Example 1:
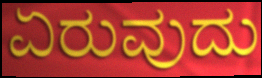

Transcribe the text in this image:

ಏರುವುದು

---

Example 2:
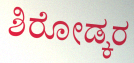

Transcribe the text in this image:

ಶಿರೋಡ್ಕರ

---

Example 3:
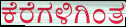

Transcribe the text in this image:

ಕೆರೆಗಳಿಗಿಂತ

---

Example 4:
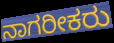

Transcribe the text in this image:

ನಾಗರೀಕರು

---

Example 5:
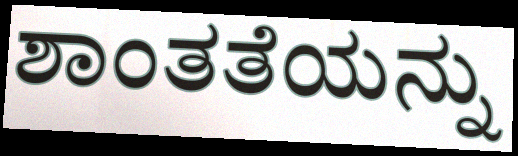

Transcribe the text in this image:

ಶಾಂತತೆಯನ್ನು